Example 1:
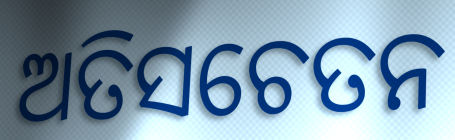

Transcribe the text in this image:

ଅତିସଚେତନ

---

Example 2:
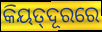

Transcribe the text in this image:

କିୟତ୍‌ଦୂରରେ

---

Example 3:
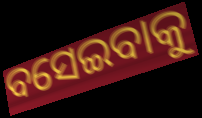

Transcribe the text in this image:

ବସେଇବାକୁ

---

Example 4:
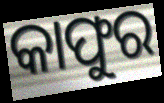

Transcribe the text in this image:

କାଫୁର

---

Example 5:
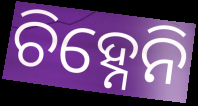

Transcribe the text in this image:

ଚିହ୍ନେନି